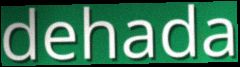
dehada